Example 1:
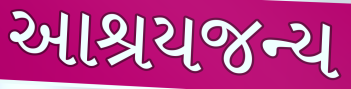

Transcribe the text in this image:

આશ્રયજન્ય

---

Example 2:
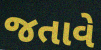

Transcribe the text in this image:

જતાવે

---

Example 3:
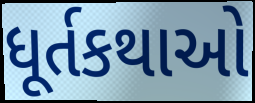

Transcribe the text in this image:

ધૂર્તકથાઓ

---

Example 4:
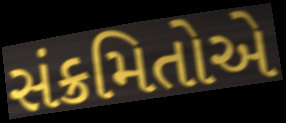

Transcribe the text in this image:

સંક્રમિતોએ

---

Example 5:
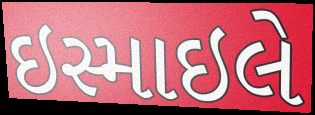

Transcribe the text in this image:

ઇસ્માઇલે